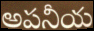
అపనీయ